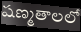
షణ్మతాలలో